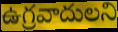
ఉగ్రవాదులని